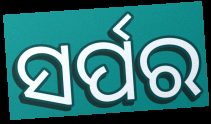
ସର୍ପର